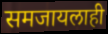
समजायलाही